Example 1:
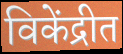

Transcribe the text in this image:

विकेंद्रीत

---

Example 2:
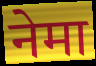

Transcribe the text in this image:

नेमा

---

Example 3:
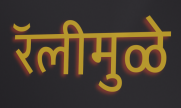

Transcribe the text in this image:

रॅलीमुळे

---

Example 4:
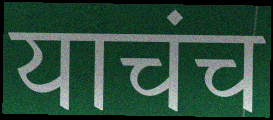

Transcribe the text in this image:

याचंच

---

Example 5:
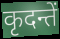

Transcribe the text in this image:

कृदन्तें